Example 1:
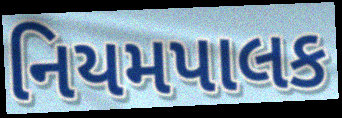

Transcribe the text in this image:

નિયમપાલક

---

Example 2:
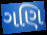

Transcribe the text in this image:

ગણિ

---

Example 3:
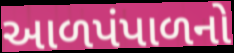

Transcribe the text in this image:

આળપંપાળનો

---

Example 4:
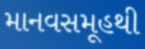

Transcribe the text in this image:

માનવસમૂહથી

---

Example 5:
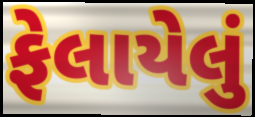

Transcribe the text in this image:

ફેલાયેલું